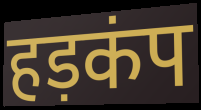
हड़कंप